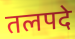
तलपदे